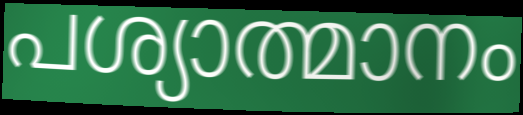
പശ്യാത്മാനം